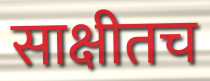
साक्षीतच